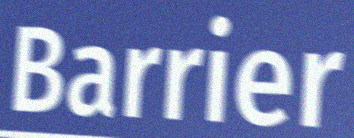
Barrier